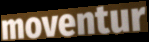
moventur